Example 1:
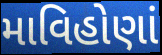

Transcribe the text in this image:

માવિહોણાં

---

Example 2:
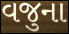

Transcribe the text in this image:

વજુના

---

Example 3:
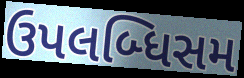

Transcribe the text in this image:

ઉપલબ્ધિસમ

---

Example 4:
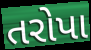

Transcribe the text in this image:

તરોપા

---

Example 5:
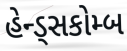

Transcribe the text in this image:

હેન્ડ્સકોમ્બ